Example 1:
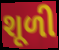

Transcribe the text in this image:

શૂળી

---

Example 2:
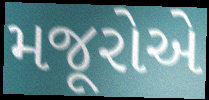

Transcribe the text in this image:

મજૂરોએ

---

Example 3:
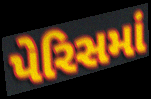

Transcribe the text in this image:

પેરિસમાં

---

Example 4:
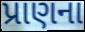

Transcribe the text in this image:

પ્રાણના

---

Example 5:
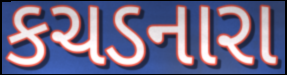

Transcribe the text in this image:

કચડનારા